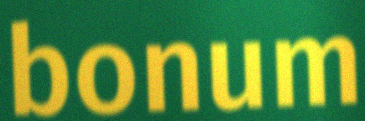
bonum